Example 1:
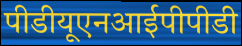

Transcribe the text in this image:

पीडीयूएनआईपीपीडी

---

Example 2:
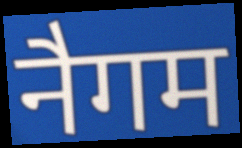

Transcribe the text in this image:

नैगम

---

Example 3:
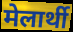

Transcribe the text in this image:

मेलार्थी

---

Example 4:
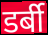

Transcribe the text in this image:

डर्बी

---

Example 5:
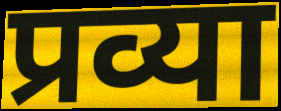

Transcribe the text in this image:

प्रव्या